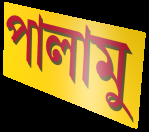
পালামু